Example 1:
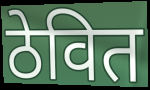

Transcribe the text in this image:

ठेवित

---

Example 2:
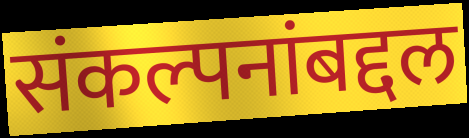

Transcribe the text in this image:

संकल्पनांबद्दल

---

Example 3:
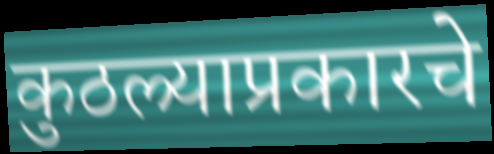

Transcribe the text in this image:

कुठल्याप्रकारचे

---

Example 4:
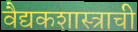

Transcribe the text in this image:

वैद्यकशास्त्राची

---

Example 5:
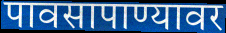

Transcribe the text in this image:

पावसापाण्यावर